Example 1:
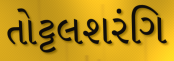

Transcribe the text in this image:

તોટ્ટલશરંગિ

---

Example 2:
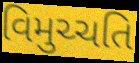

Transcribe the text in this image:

વિમુચ્ચતિ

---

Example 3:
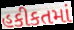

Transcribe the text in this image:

હકીકતમાં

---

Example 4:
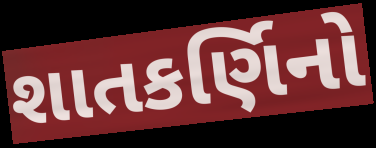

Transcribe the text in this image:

શાતકર્ણિનો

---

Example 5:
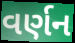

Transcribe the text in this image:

વર્ણન